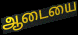
ஆடையை